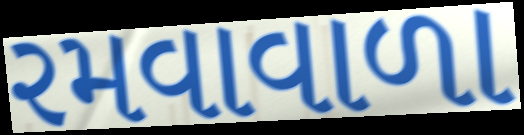
રમવાવાળા